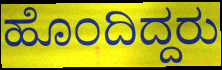
ಹೊಂದಿದ್ದರು